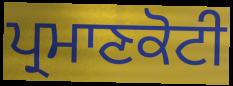
ਪ੍ਰਮਾਣਕੋਟੀ